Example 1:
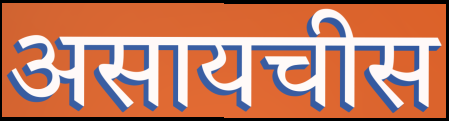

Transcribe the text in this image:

असायचीस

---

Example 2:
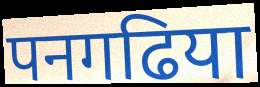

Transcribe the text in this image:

पनगढिया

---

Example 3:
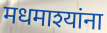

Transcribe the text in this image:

मधमाश्यांना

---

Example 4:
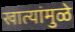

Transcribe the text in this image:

खात्यांमुळे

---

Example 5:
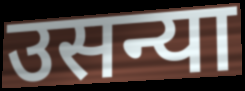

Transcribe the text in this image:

उसन्या